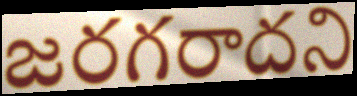
జరగరాదని